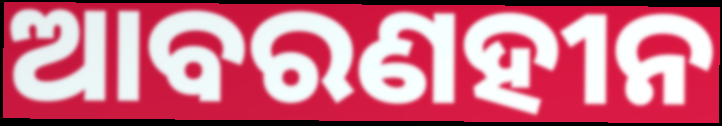
ଆବରଣହୀନ